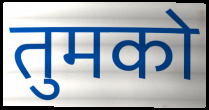
तुमको